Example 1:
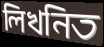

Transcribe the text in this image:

লিখনিত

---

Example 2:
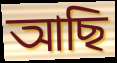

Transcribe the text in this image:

আছি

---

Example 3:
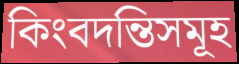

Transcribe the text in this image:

কিংবদন্তিসমূহ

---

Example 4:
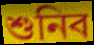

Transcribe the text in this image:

শুনিব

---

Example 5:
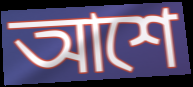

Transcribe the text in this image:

আশে